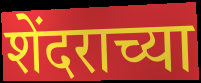
शेंदराच्या